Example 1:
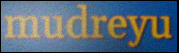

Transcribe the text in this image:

mudreyu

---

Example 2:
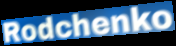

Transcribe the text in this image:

Rodchenko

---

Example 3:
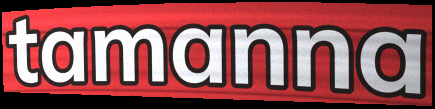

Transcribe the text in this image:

tamanna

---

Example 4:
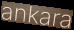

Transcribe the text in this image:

ankara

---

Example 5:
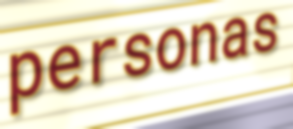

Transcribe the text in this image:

personas